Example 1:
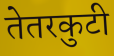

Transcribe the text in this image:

तेतरकुटी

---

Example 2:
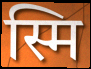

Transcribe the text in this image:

स्मि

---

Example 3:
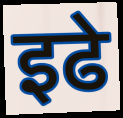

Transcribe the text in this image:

इढे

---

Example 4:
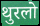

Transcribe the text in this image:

थुरलो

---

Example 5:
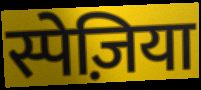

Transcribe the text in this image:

स्पेज़िया